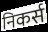
निकर्स